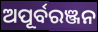
ଅପୂର୍ବରଞ୍ଜନ